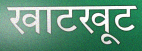
खाटखूट